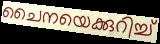
ചൈനയെക്കുറിച്ച്